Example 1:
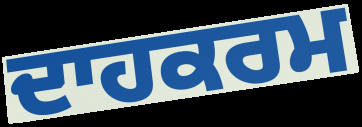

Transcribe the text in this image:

ਦਾਹਕਰਮ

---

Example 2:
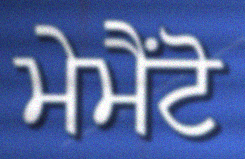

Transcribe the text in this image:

ਮੇਮੈਂਟੋ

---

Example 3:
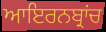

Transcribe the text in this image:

ਆਇਰਨਬ੍ਰਾਂਚ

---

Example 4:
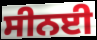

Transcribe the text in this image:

ਸੀਨਈ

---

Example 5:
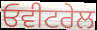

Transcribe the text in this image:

ਓਵੀਟਰੇਲ